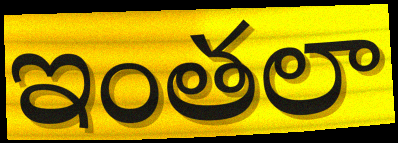
ఇంతలా